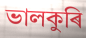
ভালকুৰি